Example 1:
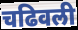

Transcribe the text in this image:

चढिवली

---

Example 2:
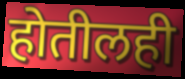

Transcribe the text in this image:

होतीलही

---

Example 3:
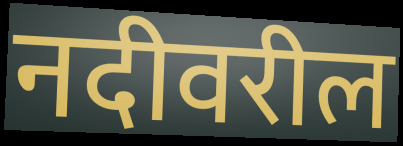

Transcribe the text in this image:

नदीवरील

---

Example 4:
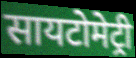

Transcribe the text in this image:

सायटोमेट्री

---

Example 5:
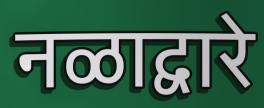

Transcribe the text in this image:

नळाद्वारे